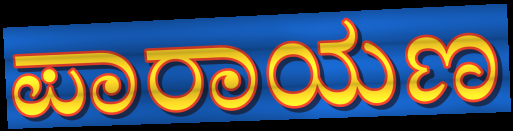
ಪಾರಾಯಣ